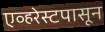
एव्हरेस्टपासून